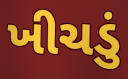
ખીચડું